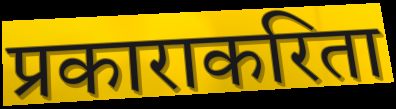
प्रकाराकरिता